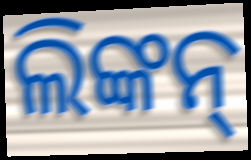
ଲିଙ୍କନ୍